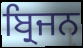
ਬ੍ਰਿਜਨ